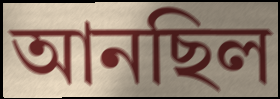
আনছিল